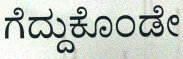
ಗೆದ್ದುಕೊಂಡೇ